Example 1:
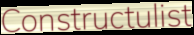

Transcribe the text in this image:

Constructulist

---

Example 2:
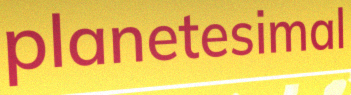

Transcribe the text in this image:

planetesimal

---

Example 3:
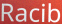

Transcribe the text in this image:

Racib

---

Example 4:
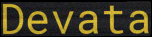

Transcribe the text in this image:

Devata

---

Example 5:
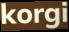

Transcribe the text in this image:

korgi